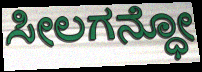
ಸೀಲಗನ್ಧೋ